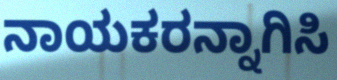
ನಾಯಕರನ್ನಾಗಿಸಿ